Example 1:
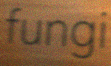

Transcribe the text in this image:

fungi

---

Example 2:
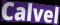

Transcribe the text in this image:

Calvel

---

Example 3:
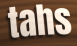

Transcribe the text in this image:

tahs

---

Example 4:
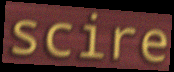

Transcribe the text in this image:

scire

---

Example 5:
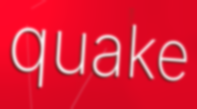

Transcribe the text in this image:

quake